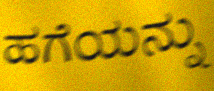
ಹಗೆಯನ್ನು